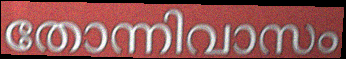
തോന്നിവാസം